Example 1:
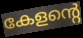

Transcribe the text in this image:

കേളന്റെ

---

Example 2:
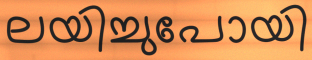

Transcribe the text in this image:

ലയിച്ചുപോയി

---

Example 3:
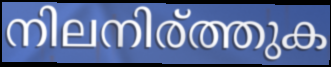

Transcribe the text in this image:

നിലനിര്ത്തുക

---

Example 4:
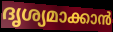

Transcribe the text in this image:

ദൃശ്യമാക്കാൻ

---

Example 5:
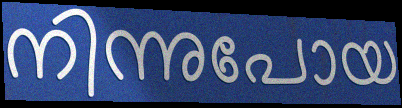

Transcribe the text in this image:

നിന്നുപോയ